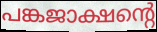
പങ്കജാക്ഷന്റെ